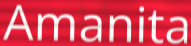
Amanita